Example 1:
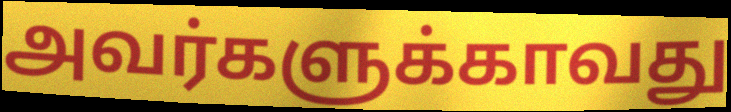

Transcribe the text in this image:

அவர்களுக்காவது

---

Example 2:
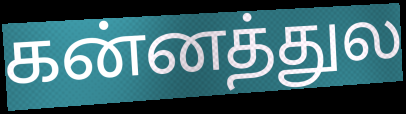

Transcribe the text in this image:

கன்னத்துல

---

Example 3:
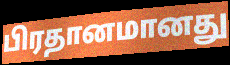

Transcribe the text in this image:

பிரதானமானது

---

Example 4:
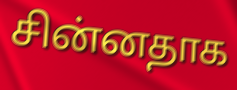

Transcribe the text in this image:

சின்னதாக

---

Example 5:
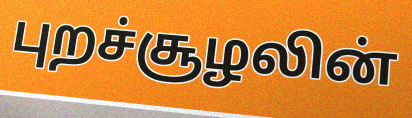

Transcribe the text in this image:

புறச்சூழலின்